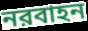
নরবাহন